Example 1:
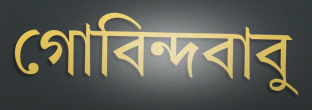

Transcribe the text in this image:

গোবিন্দবাবু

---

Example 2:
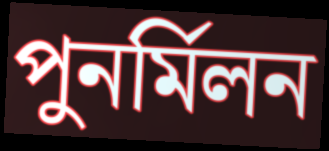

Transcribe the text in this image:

পুনর্মিলন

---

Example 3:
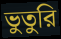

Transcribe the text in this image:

ভুতুরি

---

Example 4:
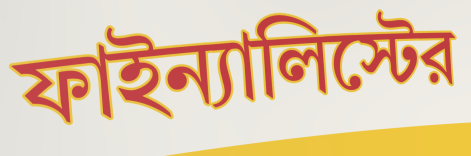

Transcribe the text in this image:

ফাইন্যালিস্টের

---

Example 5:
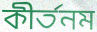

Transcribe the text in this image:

কীর্তনম